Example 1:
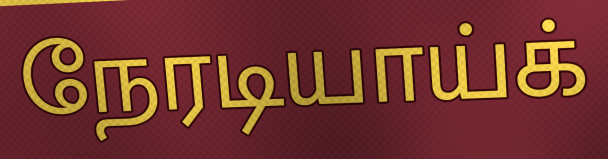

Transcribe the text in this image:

நேரடியாய்க்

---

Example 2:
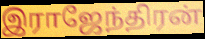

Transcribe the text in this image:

இராஜேந்திரன்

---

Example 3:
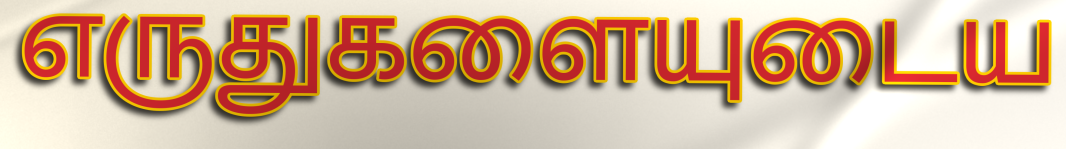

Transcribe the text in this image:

எருதுகளையுடைய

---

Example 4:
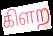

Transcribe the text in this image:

கிளற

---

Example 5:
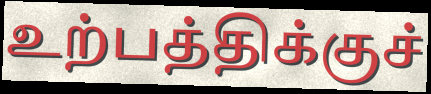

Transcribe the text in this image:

உற்பத்திக்குச்